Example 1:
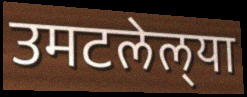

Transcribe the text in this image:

उमटलेल्या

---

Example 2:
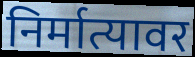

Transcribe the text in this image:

निर्मात्यावर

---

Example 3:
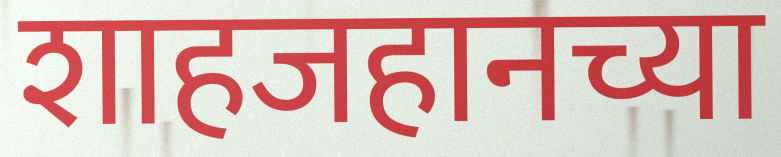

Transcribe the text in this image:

शाहजहानच्या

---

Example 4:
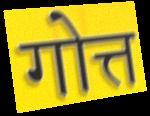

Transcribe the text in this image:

गोत्त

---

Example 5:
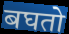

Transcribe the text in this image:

बघतो